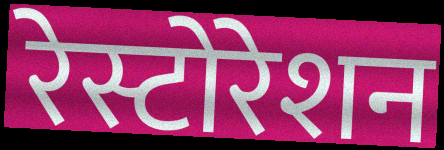
रेस्टोरेशन